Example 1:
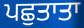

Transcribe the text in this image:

ਪਛੁਤਾਤਾ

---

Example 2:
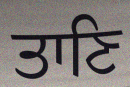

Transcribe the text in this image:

ਤਾਣਿ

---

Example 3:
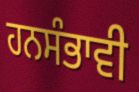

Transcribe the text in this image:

ਹਨਸੰਭਾਵੀ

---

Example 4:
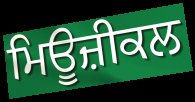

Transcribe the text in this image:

ਮਿਊਜ਼ੀਕਲ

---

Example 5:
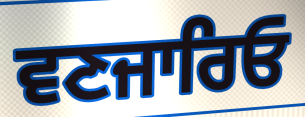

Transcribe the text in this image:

ਵਣਜਾਰਿਓ